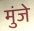
मुंजे